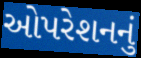
ઓપરેશનનું